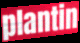
plantin